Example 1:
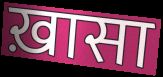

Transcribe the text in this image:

ख़ासा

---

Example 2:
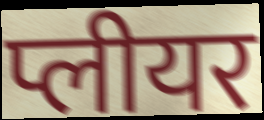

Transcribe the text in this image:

प्लीयर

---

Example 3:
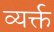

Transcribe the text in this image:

व्यर्क्त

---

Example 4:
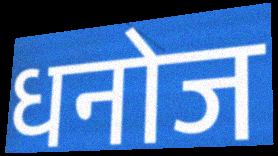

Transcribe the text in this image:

धनोज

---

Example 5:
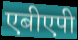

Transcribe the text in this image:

एबीएपी